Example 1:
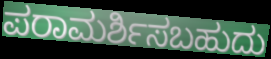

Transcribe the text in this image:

ಪರಾಮರ್ಶಿಸಬಹುದು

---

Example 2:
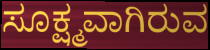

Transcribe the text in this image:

ಸೂಕ್ಷ್ಮವಾಗಿರುವ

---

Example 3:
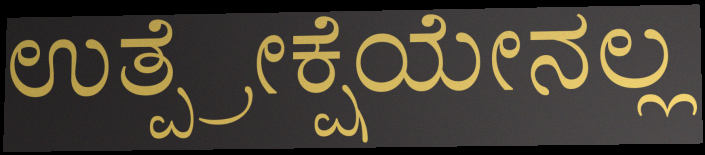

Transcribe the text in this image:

ಉತ್ಪ್ರೇಕ್ಷೆಯೇನಲ್ಲ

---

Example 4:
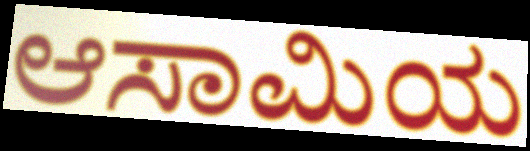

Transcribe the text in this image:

ಆಸಾಮಿಯ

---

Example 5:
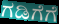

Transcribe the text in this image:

ಗಡಿಗೆಗೆ